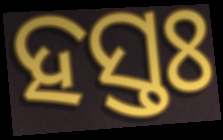
ହସ୍ତଃ